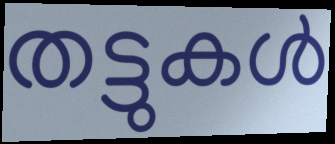
തട്ടുകൾ